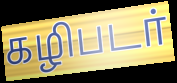
கழிபடர்